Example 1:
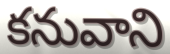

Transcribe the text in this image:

కనువాని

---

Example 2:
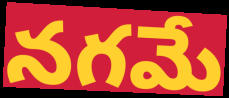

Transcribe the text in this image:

నగమే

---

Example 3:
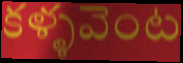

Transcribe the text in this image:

కళ్ళవెంట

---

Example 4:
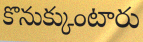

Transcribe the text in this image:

కొనుక్కుంటారు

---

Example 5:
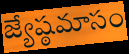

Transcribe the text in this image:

జ్యేష్ఠమాసం